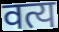
वत्य